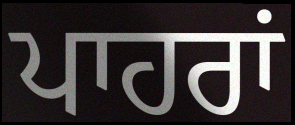
ਪਾਹਰਾਂ